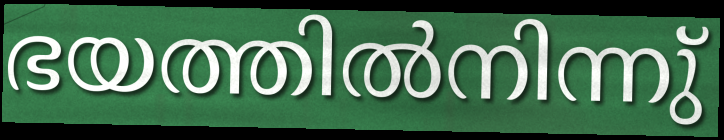
ഭയത്തിൽനിന്നു്